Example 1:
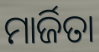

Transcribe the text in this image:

ମାର୍ଜିତା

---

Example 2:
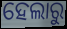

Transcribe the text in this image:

ହେଲାରୁ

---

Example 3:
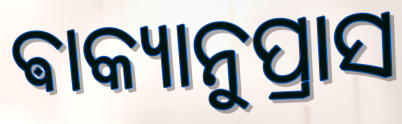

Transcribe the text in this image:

ଵାକ୍ୟାନୁପ୍ରାସ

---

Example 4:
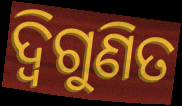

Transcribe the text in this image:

ଦ୍ଵିଗୁଣିତ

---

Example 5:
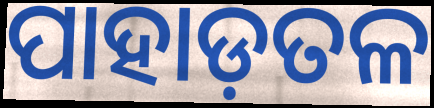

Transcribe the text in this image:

ପାହାଡ଼ତଳ